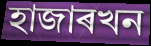
হাজাৰখন